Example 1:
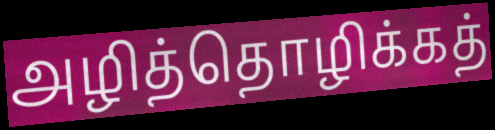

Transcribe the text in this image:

அழித்தொழிக்கத்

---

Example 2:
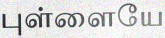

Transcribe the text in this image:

புள்ளையே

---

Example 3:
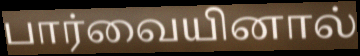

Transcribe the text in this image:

பார்வையினால்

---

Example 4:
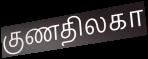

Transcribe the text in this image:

குணதிலகா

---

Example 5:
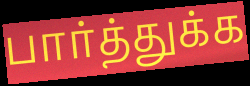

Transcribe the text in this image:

பார்த்துக்க